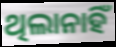
ଥିଲାନାହିଁ